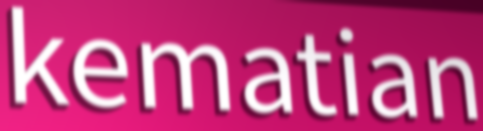
kematian